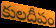
కులదీపం